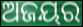
ଅଜୟର